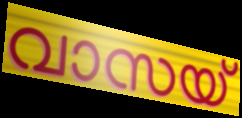
വാസയ്